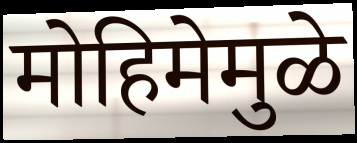
मोहिमेमुळे